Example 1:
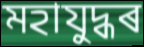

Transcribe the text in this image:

মহাযুদ্ধৰ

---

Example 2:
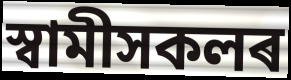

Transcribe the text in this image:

স্বামীসকলৰ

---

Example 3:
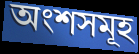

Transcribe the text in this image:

অংশসমূহ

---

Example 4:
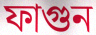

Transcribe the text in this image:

ফাগুন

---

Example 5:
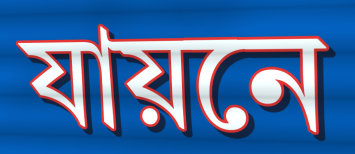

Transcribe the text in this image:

যায়নে